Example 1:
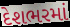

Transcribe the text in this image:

દેશભરમાં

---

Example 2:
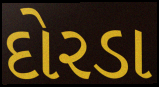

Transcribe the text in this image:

દોરડા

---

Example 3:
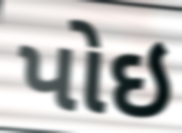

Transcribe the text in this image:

પોઇ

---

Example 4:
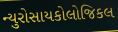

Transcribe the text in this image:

ન્યુરોસાયકોલોજિકલ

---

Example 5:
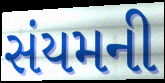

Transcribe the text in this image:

સંયમની